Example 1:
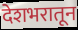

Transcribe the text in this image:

देशभरातून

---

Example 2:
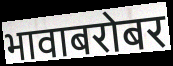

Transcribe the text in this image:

भावाबरोबर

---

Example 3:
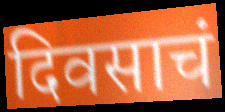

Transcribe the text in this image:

दिवसाचं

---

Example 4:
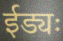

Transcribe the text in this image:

ईड्यः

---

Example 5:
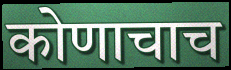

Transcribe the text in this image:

कोणाचाच